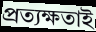
প্রত্যক্ষতাই